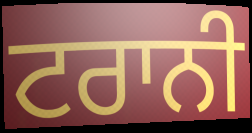
ਟਰਾਨੀ